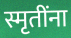
स्मृतींना